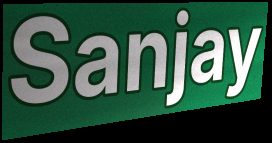
Sanjay